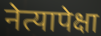
नेत्यापेक्षा